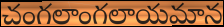
చంగలాంగలాయమాన